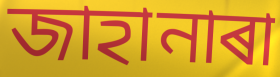
জাহানাৰা